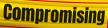
Compromising